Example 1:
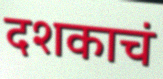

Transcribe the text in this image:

दशकाचं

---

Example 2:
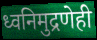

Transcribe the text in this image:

ध्वनिमुद्रणेही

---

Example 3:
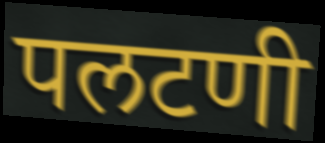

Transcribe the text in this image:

पलटणी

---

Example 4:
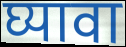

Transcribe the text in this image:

घ्यावा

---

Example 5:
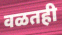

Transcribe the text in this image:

वळतही